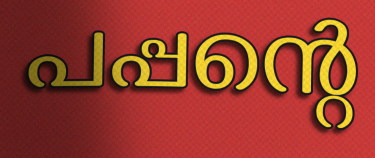
പപ്പന്റെ